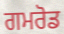
ਗਮਰੋਡ